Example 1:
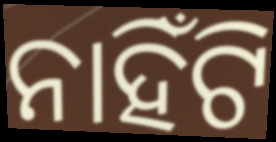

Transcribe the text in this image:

ନାହିଁଟି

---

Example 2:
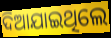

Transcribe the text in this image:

ଦିଆଯାଇଥିଲେ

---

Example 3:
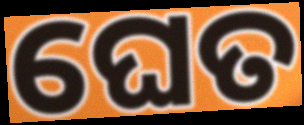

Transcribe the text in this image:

ଘେତ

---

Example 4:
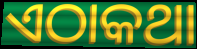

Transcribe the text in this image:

ଏଠାକଥା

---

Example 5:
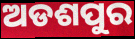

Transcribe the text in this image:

ଅଡଶପୁର